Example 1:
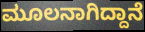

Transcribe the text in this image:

ಮೂಲನಾಗಿದ್ದಾನೆ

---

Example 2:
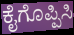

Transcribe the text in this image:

ಕೈಗೊಪ್ಪಿಸಿ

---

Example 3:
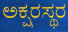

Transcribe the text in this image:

ಅಕ್ಷರಸ್ಥರ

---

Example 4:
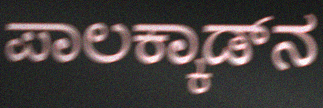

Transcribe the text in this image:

ಪಾಲಕ್ಕಾಡ್‌ನ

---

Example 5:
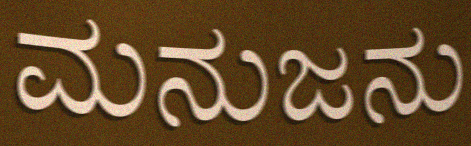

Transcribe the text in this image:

ಮನುಜನು